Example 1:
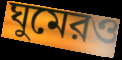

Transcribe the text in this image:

ঘুমেরও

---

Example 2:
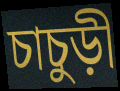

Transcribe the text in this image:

চাচুড়ী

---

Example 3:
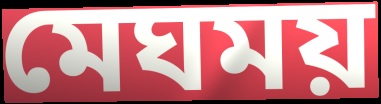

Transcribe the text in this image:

মেঘময়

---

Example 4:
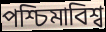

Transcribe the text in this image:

পশ্চিমাবিশ্ব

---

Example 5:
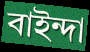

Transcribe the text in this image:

বাইন্দা